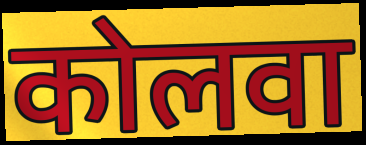
कोलवा